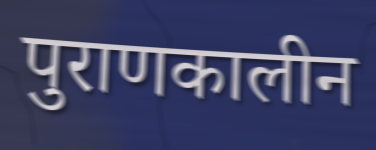
पुराणकालीन